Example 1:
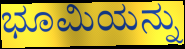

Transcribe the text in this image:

ಭೂಮಿಯನ್ನು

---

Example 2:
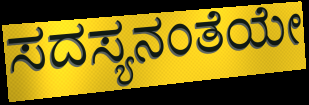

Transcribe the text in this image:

ಸದಸ್ಯನಂತೆಯೇ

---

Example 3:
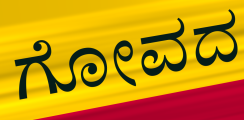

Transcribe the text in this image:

ಗೋವದ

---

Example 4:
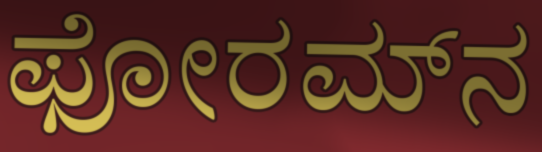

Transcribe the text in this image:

ಫೋರಮ್‌ನ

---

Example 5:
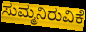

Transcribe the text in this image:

ಸುಮ್ಮನಿರುವಿಕೆ